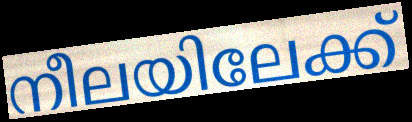
നീലയിലേക്ക്